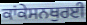
ਕਾਂਕੇਸਨਥੁਰਈ